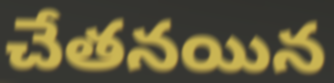
చేతనయిన